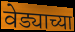
वेड्याच्या